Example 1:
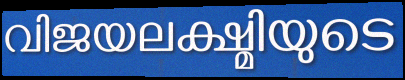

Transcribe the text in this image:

വിജയലക്ഷ്മിയുടെ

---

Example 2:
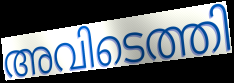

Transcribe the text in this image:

അവിടെത്തി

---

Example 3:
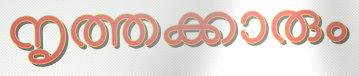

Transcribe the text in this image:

നൃത്തക്കാരും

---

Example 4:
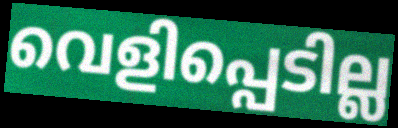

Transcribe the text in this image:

വെളിപ്പെടില്ല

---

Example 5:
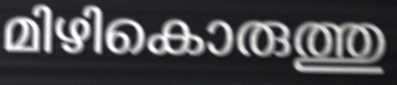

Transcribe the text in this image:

മിഴികൊരുത്തു